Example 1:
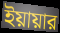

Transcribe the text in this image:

ইয়ায়ার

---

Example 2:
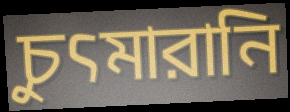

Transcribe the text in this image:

চুৎমারানি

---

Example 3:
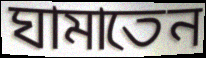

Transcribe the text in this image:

ঘামাতেন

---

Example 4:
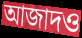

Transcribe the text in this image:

আজাদও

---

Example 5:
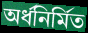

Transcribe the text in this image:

অর্ধনির্মিত